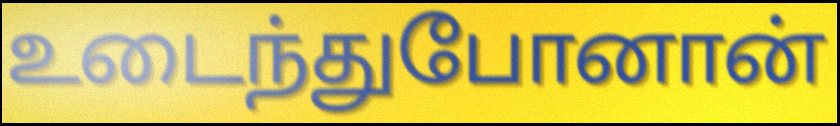
உடைந்துபோனான்